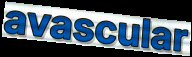
avascular